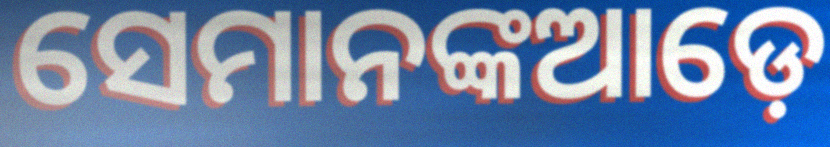
ସେମାନଙ୍କଆଡ଼େ